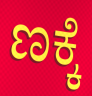
ಣಕ್ಕೆ